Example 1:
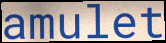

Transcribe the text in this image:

amulet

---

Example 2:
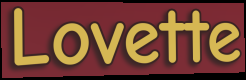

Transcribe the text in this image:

Lovette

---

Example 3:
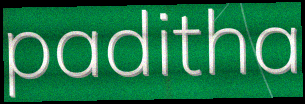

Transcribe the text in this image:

paditha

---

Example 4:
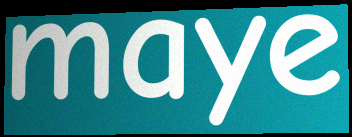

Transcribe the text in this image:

maye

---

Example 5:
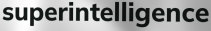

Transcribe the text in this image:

superintelligence